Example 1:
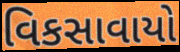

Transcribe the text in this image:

વિકસાવાયો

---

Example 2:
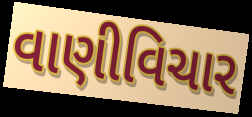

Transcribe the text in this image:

વાણીવિચાર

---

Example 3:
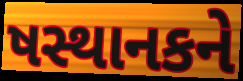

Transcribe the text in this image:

ષસ્થાનકને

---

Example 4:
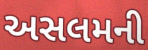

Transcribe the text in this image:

અસલમની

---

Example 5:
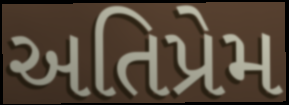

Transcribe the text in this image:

અતિપ્રેમ